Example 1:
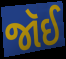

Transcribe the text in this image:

જૉઈ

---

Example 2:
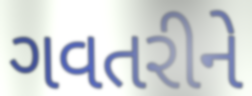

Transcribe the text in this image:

ગવતરીને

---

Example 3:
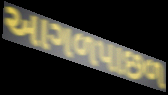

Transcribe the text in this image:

આગળપાછળ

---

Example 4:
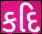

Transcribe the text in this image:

કદિ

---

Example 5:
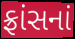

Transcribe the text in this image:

ફ્રાંસનાં